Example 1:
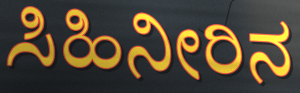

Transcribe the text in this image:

ಸಿಹಿನೀರಿನ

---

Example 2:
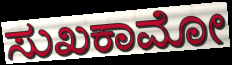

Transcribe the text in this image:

ಸುಖಕಾಮೋ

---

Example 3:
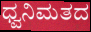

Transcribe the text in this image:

ಧ್ವನಿಮತದ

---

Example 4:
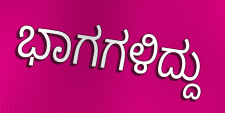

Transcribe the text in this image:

ಭಾಗಗಳಿದ್ದು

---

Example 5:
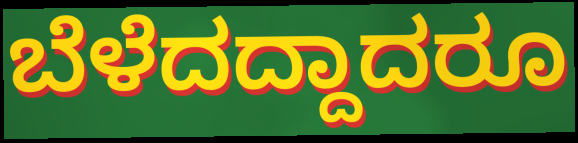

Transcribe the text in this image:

ಬೆಳೆದದ್ದಾದರೂ